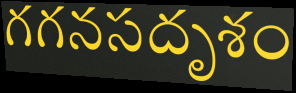
గగనసదృశం